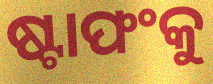
ଷ୍ଟାଫଂକୁ